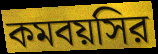
কমবয়সির